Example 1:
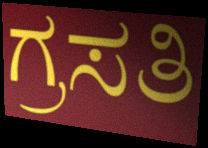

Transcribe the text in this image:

ಗ್ರಸತಿ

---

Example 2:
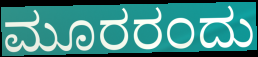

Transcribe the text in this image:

ಮೂರರಂದು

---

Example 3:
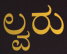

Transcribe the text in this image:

ಲ್ವರು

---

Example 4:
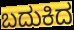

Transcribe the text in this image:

ಬದುಕಿದ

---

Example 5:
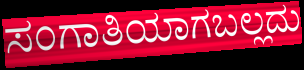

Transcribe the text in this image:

ಸಂಗಾತಿಯಾಗಬಲ್ಲದು